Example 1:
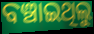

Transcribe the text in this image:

ବଞ୍ଚାଇଥିଲୁ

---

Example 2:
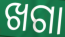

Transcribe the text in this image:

ଖଗା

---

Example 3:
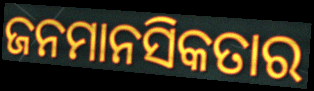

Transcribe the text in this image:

ଜନମାନସିକତାର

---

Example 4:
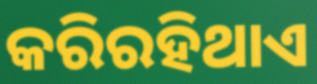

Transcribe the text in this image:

କରିରହିଥାଏ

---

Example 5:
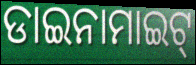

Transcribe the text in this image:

ଡାଇନାମାଇଟ୍